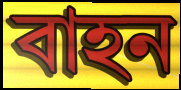
বাহন